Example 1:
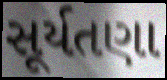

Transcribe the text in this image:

સૂર્યતણા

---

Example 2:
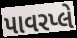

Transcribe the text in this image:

પાવરપ્લે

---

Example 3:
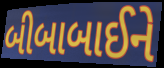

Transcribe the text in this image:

બીબાબાઈને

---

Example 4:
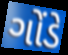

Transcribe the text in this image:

ગોંડે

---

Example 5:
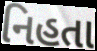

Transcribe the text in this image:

નિહતા